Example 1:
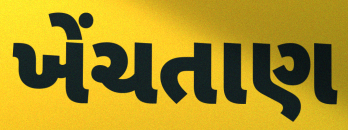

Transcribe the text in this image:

ખેંચતાણ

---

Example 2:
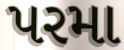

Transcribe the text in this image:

પરમા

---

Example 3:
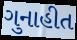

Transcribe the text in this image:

ગુનાહીત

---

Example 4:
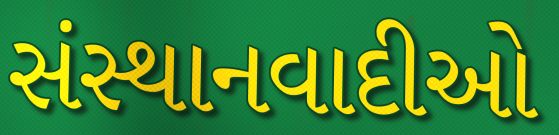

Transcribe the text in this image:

સંસ્થાનવાદીઓ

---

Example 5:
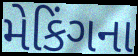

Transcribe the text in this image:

મેકિંગના